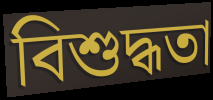
বিশুদ্ধতা